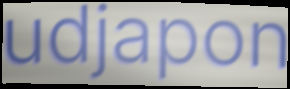
udjapon